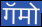
गॅमो